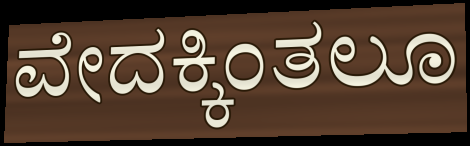
ವೇದಕ್ಕಿಂತಲೂ